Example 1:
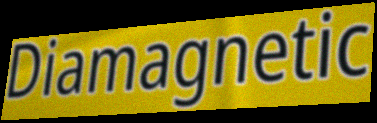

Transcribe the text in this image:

Diamagnetic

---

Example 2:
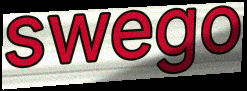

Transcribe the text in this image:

swego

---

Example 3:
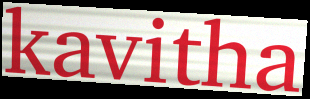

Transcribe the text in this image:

kavitha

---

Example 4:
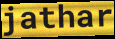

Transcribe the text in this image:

jathar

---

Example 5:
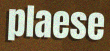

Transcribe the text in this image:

plaese